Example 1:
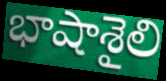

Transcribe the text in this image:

భాషాశైలి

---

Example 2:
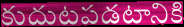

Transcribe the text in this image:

కుదుటపడటానికి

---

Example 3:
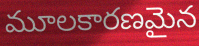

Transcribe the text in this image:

మూలకారణమైన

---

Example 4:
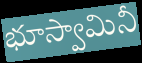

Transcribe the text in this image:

భూస్వామినీ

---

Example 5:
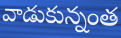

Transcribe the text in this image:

వాడుకున్నంత